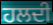
ਹਲਦੀ